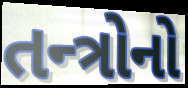
તન્ત્રોનો